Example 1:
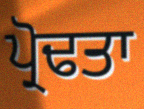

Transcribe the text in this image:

ਪ੍ਰੋਢਤਾ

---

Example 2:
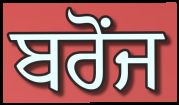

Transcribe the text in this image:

ਬਰੋਂਜ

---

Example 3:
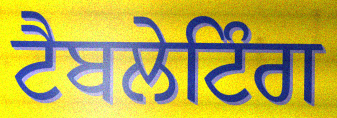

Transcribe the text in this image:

ਟੈਬਲੇਟਿੰਗ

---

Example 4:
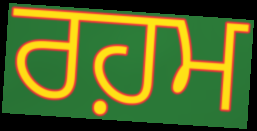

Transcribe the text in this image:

ਰਹ਼ਮ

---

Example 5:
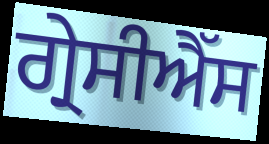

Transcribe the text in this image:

ਗ੍ਰੇਸੀਐੱਸ